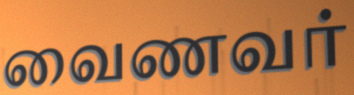
வைணவர்